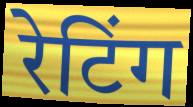
रेटिंग